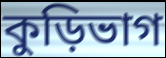
কুড়িভাগ